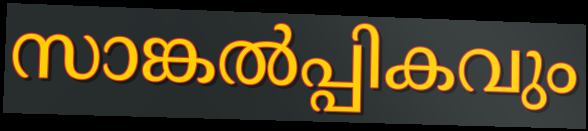
സാങ്കൽപ്പികവും